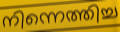
നിന്നെത്തിച്ച